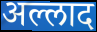
अल्लाद